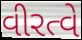
વીરત્વે